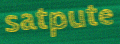
satpute